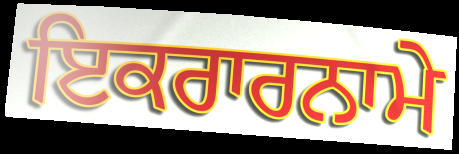
ਇਕਰਾਰਨਾਮੇ